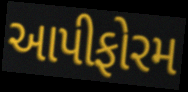
આપીફોરમ